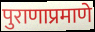
पुराणाप्रमाणे